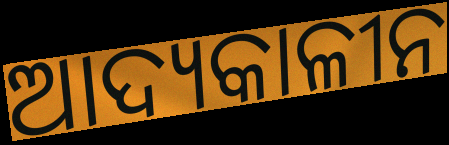
ଆଦ୍ୟକାଳୀନ